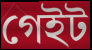
গেইট